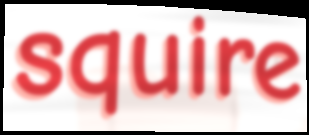
squire